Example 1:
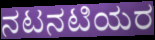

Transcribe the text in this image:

ನಟನಟಿಯರ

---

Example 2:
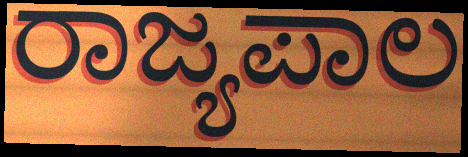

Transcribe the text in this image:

ರಾಜ್ಯಪಾಲ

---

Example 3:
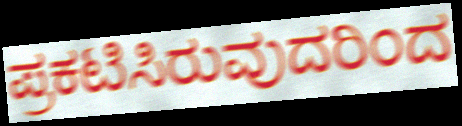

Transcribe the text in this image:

ಪ್ರಕಟಿಸಿರುವುದರಿಂದ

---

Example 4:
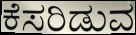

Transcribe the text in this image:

ಕೆಸರಿಡುವ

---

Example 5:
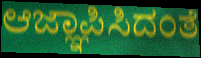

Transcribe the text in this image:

ಆಜ್ಞಾಪಿಸಿದಂತೆ